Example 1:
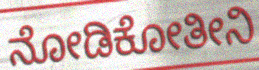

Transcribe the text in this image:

ನೋಡಿಕೋತೀನಿ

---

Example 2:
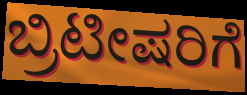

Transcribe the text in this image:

ಬ್ರಿಟೀಷರಿಗೆ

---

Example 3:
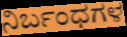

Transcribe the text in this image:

ನಿರ್ಬಂಧಗಳ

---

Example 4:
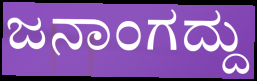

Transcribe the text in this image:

ಜನಾಂಗದ್ದು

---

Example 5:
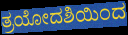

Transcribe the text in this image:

ತ್ರಯೋದಶಿಯಿಂದ